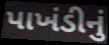
પાખંડીનું